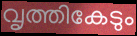
വൃത്തികേടും